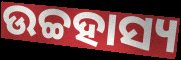
ଉଚ୍ଚହାସ୍ୟ